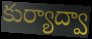
కుర్యాద్వా